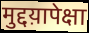
मुद्दय़ापेक्षा